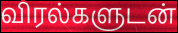
விரல்களுடன்